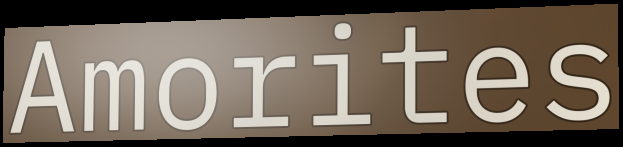
Amorites